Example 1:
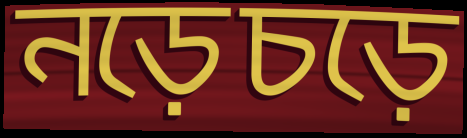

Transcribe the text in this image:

নড়েচড়ে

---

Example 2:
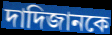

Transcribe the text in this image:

দাদিজানকে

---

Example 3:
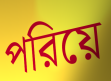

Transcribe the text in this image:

পরিয়ে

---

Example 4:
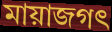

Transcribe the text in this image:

মায়াজগৎ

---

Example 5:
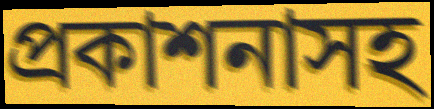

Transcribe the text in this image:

প্রকাশনাসহ